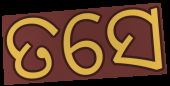
ତସେ